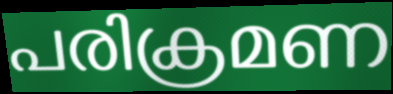
പരിക്രമണ